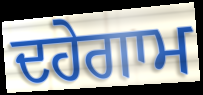
ਦਹੇਗਾਮ